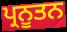
ਪ੍ਰਨੂਤਨ